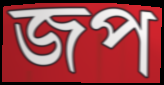
জপ